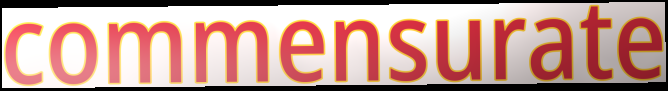
commensurate